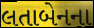
લતાબેનના